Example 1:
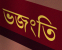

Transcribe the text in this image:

ভজংতি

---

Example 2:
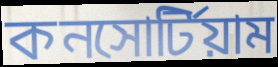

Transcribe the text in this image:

কনসোর্টিয়াম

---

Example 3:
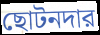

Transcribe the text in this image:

ছোটনদার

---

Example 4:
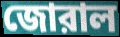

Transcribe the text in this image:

জোরাল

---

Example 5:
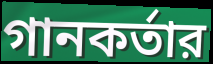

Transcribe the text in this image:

গানকর্তার